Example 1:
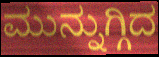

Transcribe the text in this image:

ಮುನ್ನುಗ್ಗಿದ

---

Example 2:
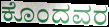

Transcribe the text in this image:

ಕೊಂದವರ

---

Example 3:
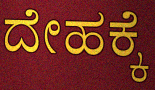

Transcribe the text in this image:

ದೇಹಕ್ಕೆ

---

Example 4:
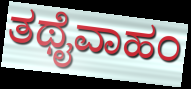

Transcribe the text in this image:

ತಥೈವಾಹಂ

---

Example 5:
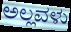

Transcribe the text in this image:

ಅಲ್ಲವಳು